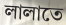
লালাতে